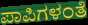
ಪಾಪಿಗಳಂತೆ